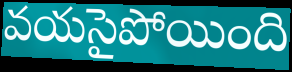
వయసైపోయింది